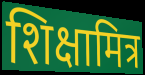
शिक्षामित्र